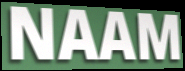
NAAM